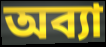
অব্যা